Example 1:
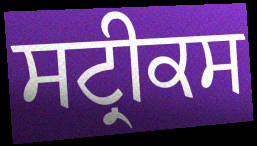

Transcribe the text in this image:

ਸਟ੍ਰੀਕਸ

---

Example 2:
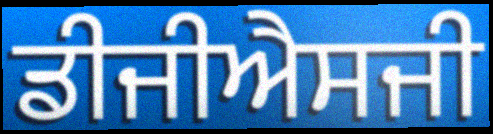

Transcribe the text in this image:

ਡੀਜੀਐਸਜੀ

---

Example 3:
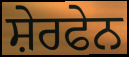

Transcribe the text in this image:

ਸ਼ੇਰਫੇਨ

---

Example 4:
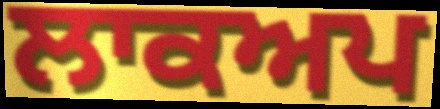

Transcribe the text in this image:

ਲਾਕਅਪ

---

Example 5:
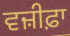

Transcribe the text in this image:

ਵਜ਼ੀਫ਼ਾ